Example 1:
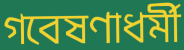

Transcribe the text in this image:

গবেষণাধর্মী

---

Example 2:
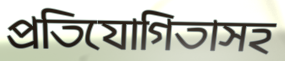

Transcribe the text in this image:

প্রতিযোগিতাসহ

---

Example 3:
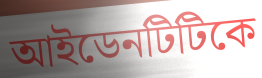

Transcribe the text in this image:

আইডেনটিটিকে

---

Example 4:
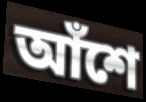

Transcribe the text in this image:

আঁশে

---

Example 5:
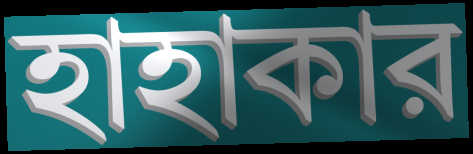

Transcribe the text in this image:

হাহাকার